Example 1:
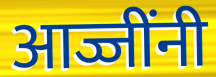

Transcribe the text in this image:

आज्जींनी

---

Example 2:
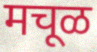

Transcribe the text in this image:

मचूळ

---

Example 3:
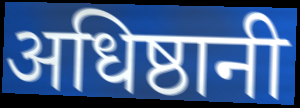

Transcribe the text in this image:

अधिष्ठानी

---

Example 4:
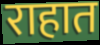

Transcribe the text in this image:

राहात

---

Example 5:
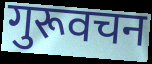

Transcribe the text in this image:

गुरूवचन